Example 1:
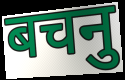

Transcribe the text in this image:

बचनु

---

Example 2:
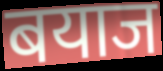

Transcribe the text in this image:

बयाज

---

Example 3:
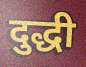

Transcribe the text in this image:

दुद्धी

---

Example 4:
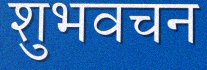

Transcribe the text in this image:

शुभवचन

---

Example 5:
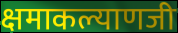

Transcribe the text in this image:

क्षमाकल्याणजी